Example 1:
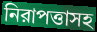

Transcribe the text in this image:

নিরাপত্তাসহ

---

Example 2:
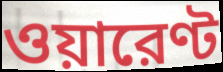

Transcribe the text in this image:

ওয়ারেণ্ট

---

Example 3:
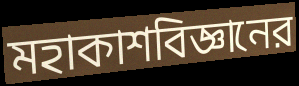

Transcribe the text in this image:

মহাকাশবিজ্ঞানের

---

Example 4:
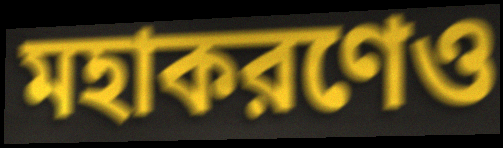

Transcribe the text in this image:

মহাকরণেও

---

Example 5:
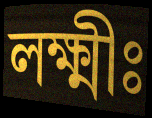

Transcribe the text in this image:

লক্ষ্মীঃ